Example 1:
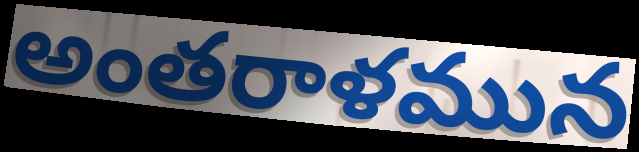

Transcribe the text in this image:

అంతరాళమున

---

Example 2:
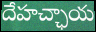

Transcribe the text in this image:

దేహచ్ఛాయ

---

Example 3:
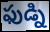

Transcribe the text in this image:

ఫుడ్ని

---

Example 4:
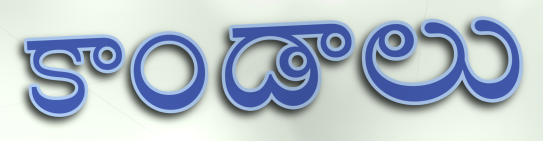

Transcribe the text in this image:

కాండాలు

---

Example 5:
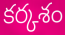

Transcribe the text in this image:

కర్కశం